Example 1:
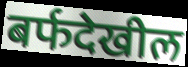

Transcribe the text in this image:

बर्फदेखील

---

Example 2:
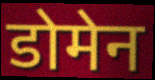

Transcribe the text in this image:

डोमेन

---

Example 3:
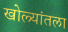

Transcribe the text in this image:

खोल्यांतला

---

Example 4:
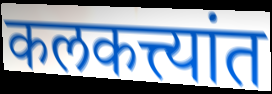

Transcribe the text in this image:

कलकत्त्यांत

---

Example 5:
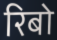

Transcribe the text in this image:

रिबो